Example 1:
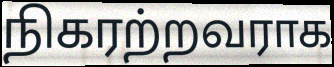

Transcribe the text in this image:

நிகரற்றவராக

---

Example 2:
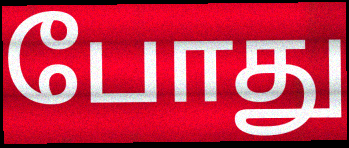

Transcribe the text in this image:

போது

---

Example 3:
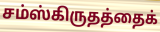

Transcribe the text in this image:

சம்ஸ்கிருதத்தைக்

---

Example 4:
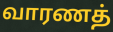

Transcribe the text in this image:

வாரணத்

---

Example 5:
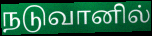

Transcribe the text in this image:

நடுவானில்